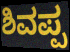
ಶಿವಪ್ಪ